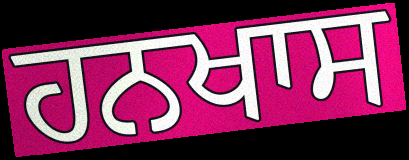
ਹਨਖਾਸ